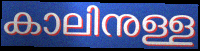
കാലിനുള്ള